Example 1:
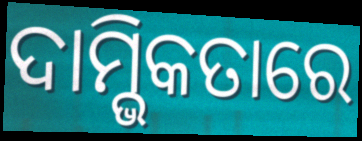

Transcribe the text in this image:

ଦାମ୍ଭିକତାରେ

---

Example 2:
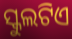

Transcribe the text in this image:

ସ୍କୁଲଟିଏ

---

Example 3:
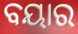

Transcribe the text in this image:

ବୟାର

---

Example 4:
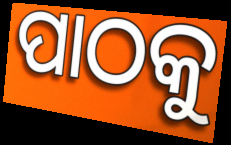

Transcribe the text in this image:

ପାଠକୁ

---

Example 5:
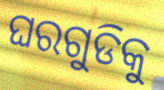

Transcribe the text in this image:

ଘରଗୁଡିକୁ